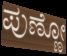
ಪುಣ್ಣೋ